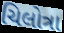
ચિલોત્રા